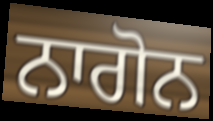
ਨਾਗੋਨ